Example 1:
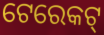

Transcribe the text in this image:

ଟେରେକଟ୍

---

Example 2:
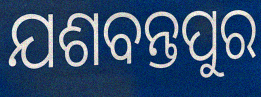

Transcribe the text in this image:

ଯଶବନ୍ତପୁର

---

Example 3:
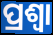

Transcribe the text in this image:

ପ୍ରଶ୍ଵା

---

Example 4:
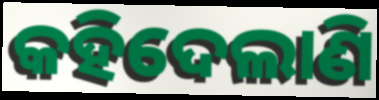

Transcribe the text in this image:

କହିଦେଲାଣି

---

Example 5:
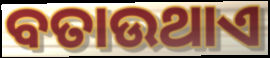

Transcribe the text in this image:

ବତାଉଥାଏ